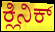
ಕ್ಲಿನಿಕ್